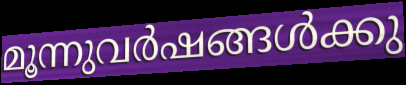
മൂന്നുവർഷങ്ങൾക്കു